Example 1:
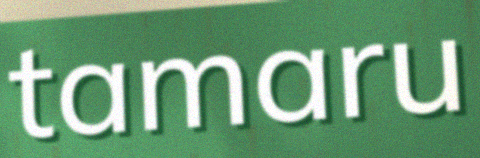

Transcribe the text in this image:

tamaru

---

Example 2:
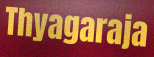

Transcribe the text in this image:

Thyagaraja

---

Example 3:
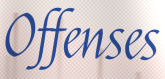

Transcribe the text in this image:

Offenses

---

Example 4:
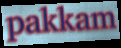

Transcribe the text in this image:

pakkam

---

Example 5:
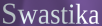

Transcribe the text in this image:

Swastika